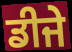
ਡੀਜੇ